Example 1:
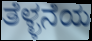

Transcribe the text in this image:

ತೆಳ್ಳನೆಯ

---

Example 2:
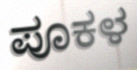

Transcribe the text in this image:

ಪೂಕಳ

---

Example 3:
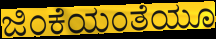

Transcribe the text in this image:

ಜಿಂಕೆಯಂತೆಯೂ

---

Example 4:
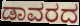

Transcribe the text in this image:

ಡಾವರದ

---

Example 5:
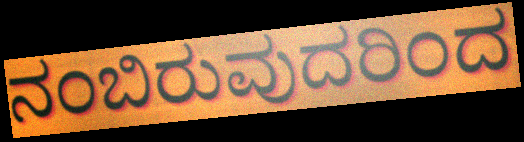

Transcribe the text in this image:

ನಂಬಿರುವುದರಿಂದ